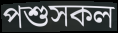
পশুসকল